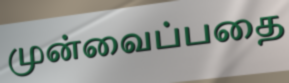
முன்வைப்பதை